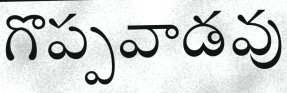
గొప్పవాడవు